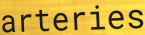
arteries